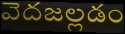
వెదజల్లడం